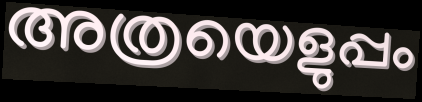
അത്രയെളുപ്പം